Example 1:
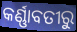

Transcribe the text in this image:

କର୍ଣ୍ଣାବତୀରୁ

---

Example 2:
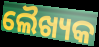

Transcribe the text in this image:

ଲୈଖ୍ୟକ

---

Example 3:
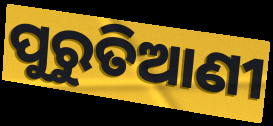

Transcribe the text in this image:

ପୁରୁତିଆଣୀ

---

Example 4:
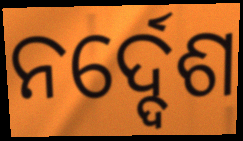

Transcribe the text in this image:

ନର୍ଦ୍ଦେଶ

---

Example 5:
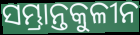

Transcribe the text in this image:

ସମ୍ଭ୍ରାନ୍ତକୁଳୀନ